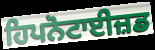
ਹਿਪਨੋਟਾਈਜ਼ਡ